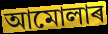
আমোলাৰ